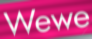
Wewe